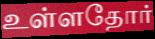
உள்ளதோர்